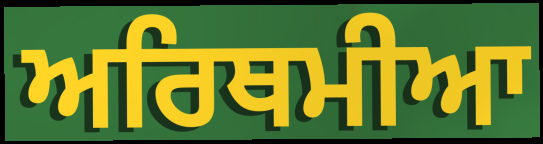
ਅਰਿਥਮੀਆ